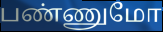
பண்ணுமோ